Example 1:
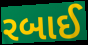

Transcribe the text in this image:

રબાઈ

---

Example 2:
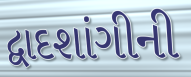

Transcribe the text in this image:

દ્વાદશાંગીની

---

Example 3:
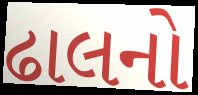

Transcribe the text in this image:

ઢાલનો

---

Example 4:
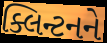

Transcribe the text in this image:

ક્લિન્ટનને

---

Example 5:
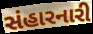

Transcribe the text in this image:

સંહારનારી